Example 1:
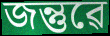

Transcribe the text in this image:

জন্তুৱে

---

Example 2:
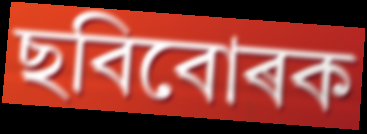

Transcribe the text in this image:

ছবিবোৰক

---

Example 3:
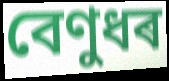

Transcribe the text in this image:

বেণুধৰ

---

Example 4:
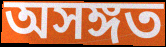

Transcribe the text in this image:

অসঙ্গত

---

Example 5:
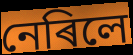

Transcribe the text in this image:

নেৰিলে